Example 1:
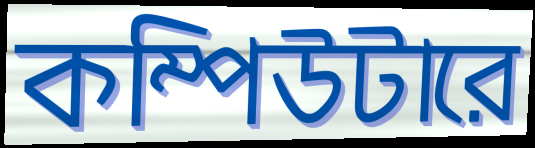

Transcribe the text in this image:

কম্পিউটারে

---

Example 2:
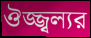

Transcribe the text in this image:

ঔজ্জ্বল্যর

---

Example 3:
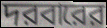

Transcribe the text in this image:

দরবারের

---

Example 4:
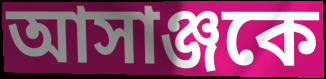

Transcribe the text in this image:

আসাঞ্জকে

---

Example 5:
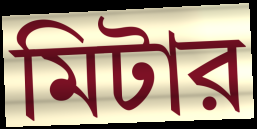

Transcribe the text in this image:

মিটার